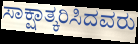
ಸಾಕ್ಷಾತ್ಕರಿಸಿದವರು